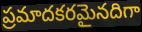
ప్రమాదకరమైనదిగా